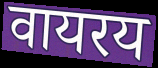
वायरय